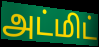
அட்மிட்